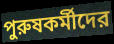
পুরুষকর্মীদের